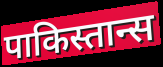
पाकिस्तान्स